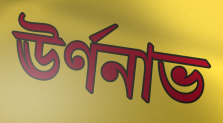
ঊর্ণনাভ